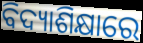
ବିଦ୍ୟାଶିକ୍ଷାରେ